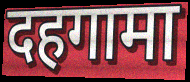
दहगामा